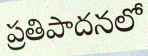
ప్రతిపాదనలో